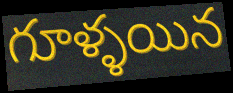
గూళ్ళయిన